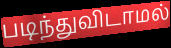
படிந்துவிடாமல்